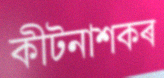
কীটনাশকৰ